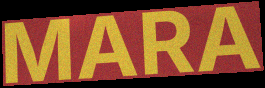
MARA